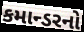
કમાન્ડરનો